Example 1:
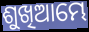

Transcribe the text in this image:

ଶୁଖିଆମ୍ଭେ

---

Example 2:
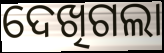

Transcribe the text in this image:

ଦେଖିଗଲା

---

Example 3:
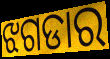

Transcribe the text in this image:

ଝଗଡାର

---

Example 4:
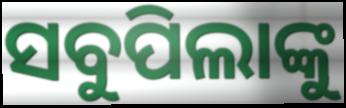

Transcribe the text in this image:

ସବୁପିଲାଙ୍କୁ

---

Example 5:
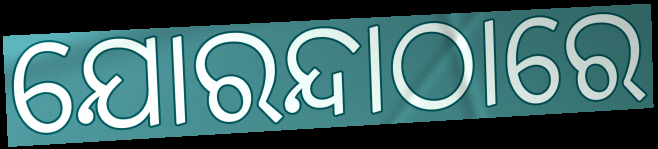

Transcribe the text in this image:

ଯୋରନ୍ଦାଠାରେ